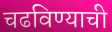
चढविण्याची